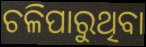
ଚଳିପାରୁଥିବା